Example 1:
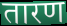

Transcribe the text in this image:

तारण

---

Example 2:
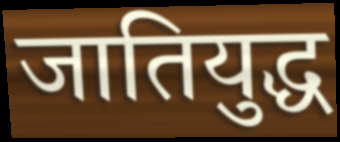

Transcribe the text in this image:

जातियुद्ध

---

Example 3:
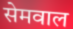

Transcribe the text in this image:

सेमवाल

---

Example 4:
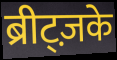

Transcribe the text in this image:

ब्रीट्ज़के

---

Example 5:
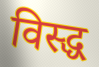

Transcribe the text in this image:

विस्द्ध